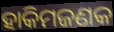
ହାକିମଜଣକ